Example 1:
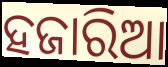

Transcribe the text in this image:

ହଜାରିଆ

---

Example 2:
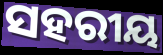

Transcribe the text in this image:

ସହରୀୟ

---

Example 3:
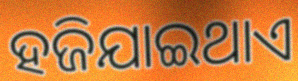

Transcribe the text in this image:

ହଜିଯାଇଥାଏ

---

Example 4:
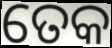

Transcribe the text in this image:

ତେକ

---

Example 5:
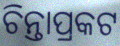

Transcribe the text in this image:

ଚିନ୍ତାପ୍ରକଟ